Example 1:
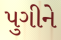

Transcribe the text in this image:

પુગીને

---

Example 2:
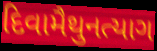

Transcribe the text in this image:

દિવામૈથુનત્યાગ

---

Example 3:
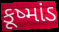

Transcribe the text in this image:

કૂષ્માંડ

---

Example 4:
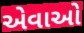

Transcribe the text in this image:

એવાઓ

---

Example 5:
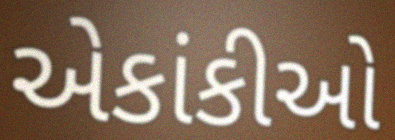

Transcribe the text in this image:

એકાંકીઓ